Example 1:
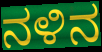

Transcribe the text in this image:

ನಳಿನ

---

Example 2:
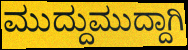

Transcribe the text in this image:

ಮುದ್ದುಮುದ್ದಾಗಿ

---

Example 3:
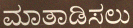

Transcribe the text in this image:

ಮಾತಾಡಿಸಲು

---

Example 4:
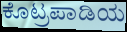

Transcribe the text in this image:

ಕೊಟ್ರಪಾಡಿಯ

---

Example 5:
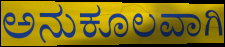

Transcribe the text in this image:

ಅನುಕೂಲವಾಗಿ